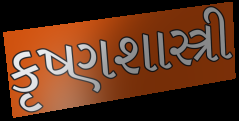
કૃષ્ણશાસ્ત્રી